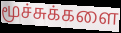
மூச்சுக்களை